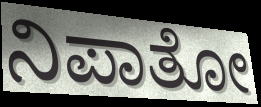
ನಿಪಾತೋ